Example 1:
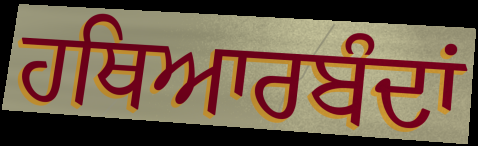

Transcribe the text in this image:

ਹਥਿਆਰਬੰਦਾਂ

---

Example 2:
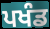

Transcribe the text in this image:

ਪਖੰਡ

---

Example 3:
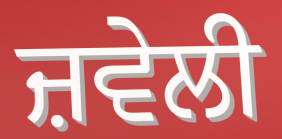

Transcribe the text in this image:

ਜ਼ਵੇਲੀ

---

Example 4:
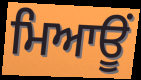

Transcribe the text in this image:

ਮਿਆਊਂ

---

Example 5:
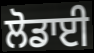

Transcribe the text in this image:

ਲੋਡਾਈ